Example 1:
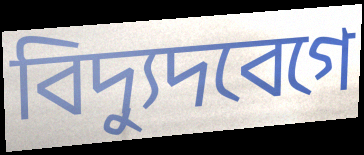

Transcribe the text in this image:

বিদ্যুদবেগে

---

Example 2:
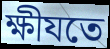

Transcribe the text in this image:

ক্ষীযতে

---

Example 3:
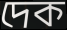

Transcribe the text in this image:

দেক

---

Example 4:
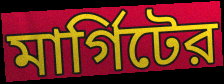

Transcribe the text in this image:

মার্গিটের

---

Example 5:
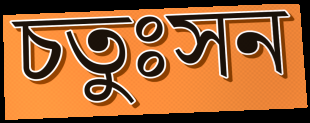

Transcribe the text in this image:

চতুঃসন